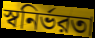
স্বনির্ভরতা